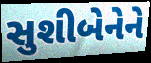
સુશીબેનેને